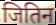
जितिन